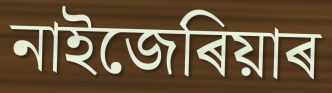
নাইজেৰিয়াৰ